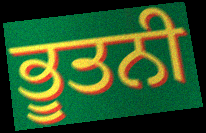
ਭੂਤਨੀ